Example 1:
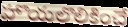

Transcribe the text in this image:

హొయలొలికించే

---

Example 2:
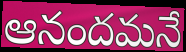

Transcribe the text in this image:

ఆనందమనే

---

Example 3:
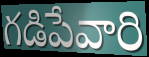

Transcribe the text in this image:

గడిపేవారి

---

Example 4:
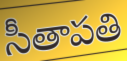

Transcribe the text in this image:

సీతాపతి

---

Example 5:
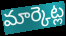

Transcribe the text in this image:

మార్కెట్ల